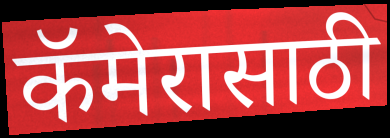
कॅमेरासाठी